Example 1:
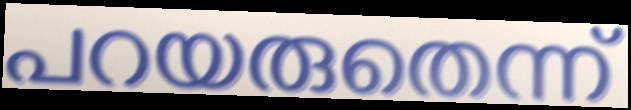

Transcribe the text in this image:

പറയരുതെന്ന്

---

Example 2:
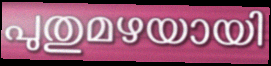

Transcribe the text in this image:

പുതുമഴയായി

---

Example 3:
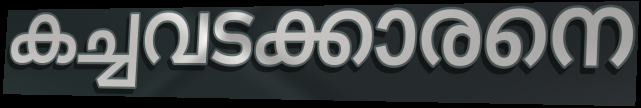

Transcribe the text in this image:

കച്ചവടക്കാരനെ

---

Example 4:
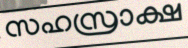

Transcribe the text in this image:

സഹസ്രാക്ഷ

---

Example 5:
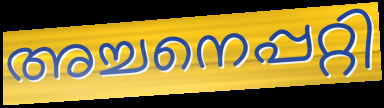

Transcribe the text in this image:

അച്ചനെപ്പറ്റി